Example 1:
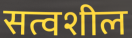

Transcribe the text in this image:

सत्वशील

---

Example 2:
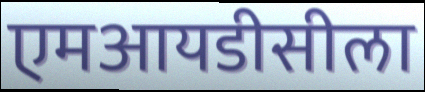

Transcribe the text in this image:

एमआयडीसीला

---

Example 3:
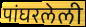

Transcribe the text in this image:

पांघरलेली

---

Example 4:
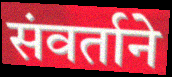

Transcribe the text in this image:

संवर्ताने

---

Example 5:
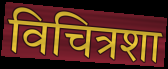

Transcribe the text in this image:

विचित्रशा